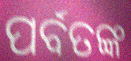
ପର୍ବତଙ୍କ